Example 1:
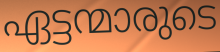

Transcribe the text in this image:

ഏട്ടന്മാരുടെ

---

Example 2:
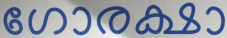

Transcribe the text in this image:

ഗോരക്ഷാ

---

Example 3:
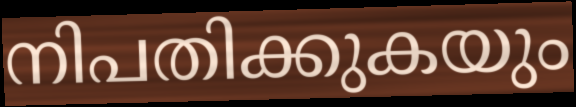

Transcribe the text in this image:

നിപതിക്കുകയും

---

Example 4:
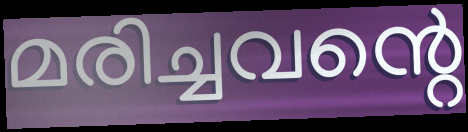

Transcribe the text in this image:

മരിച്ചവന്റെ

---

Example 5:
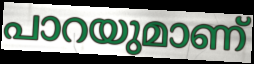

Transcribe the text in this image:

പാറയുമാണ്